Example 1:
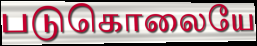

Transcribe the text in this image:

படுகொலையே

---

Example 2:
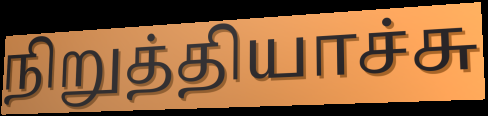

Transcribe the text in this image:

நிறுத்தியாச்சு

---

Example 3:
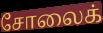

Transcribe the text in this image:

சோலைக்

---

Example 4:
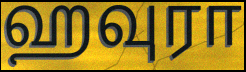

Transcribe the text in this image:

ஹவுரா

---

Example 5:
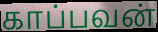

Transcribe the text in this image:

காப்பவன்